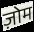
ज़ोम